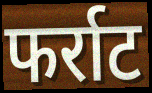
फर्राट